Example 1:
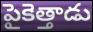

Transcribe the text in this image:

పైకెత్తాడు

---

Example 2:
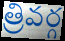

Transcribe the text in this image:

త్రివర్గ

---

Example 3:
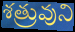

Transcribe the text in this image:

శత్రువుని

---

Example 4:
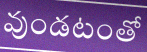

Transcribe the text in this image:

వుండటంతో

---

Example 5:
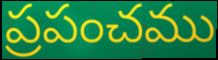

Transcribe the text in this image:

ప్రపంచము